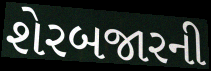
શેરબજારની